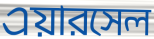
এয়ারসেল